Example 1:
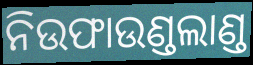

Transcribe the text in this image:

ନିଉଫାଉଣ୍ଡଲାଣ୍ଡ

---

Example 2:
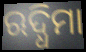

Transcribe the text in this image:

ଋଦ୍ଧିମା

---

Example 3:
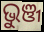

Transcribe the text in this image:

ଭୁଞ୍ଜ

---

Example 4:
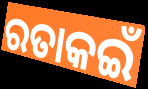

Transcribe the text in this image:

ରତାକଇଁ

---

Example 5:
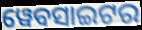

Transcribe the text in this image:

ୱେବସାଇଟର